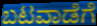
ಬಟವಾಡೆಗೆ